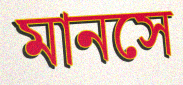
মানসে